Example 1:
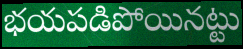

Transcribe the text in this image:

భయపడిపోయినట్టు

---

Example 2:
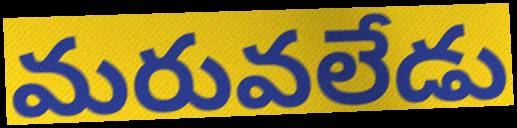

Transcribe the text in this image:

మరువలేడు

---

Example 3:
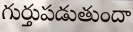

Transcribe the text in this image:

గుర్తుపడుతుందా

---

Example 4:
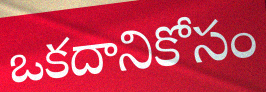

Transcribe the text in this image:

ఒకదానికోసం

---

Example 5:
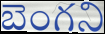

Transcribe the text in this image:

బెంగని